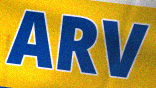
ARV